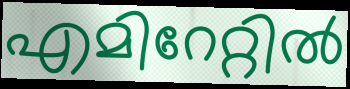
എമിറേറ്റിൽ